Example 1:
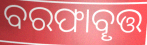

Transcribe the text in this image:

ବରଫାବୄତ୍ତ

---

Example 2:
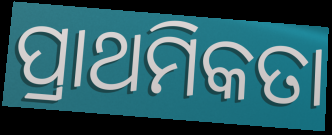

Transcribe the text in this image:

ପ୍ରାଥମିକତା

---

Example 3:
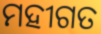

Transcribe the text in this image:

ମହୀଗତ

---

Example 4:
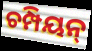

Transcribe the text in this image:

ଚମ୍ପିୟନ୍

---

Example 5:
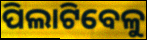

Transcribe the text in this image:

ପିଲାଟିବେଳୁ